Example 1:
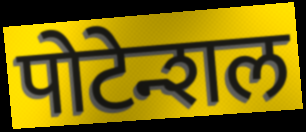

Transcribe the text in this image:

पोटेन्शल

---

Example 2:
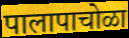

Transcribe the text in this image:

पालापाचोळा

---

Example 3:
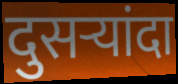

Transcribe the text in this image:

दुसऱ्यांदा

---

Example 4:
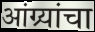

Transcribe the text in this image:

आंग्र्यांचा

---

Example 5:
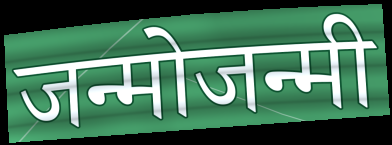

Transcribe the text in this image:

जन्मोजन्मी